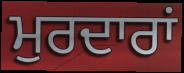
ਮੁਰਦਾਰਾਂ